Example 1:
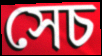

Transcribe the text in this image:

সেচ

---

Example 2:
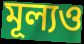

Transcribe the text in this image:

মূল্যও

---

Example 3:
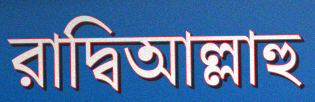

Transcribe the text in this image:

রাদ্বিআল্লাহু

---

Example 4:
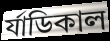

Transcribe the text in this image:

র্যাডিকাল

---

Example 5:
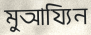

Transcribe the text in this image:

মুআয্যিন